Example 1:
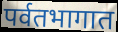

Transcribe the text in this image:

पर्वतभागात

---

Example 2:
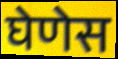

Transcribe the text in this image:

घेणेस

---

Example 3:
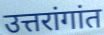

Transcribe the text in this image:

उत्तरांगांत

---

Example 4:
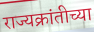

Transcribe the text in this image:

राज्यक्रांतीच्या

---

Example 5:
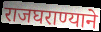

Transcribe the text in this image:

राजघराण्याने